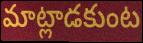
మాట్లాడకుంట